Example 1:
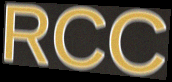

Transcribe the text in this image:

RCC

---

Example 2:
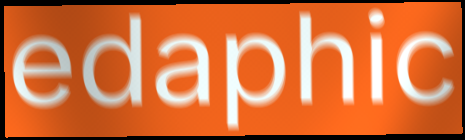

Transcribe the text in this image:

edaphic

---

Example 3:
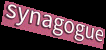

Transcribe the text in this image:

synagogue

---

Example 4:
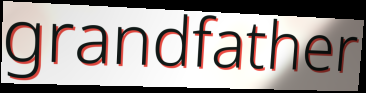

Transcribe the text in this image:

grandfather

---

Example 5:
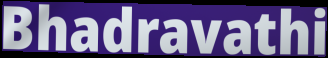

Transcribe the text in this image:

Bhadravathi